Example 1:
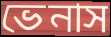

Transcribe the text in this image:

ভেনাস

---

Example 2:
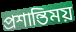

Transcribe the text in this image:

প্রশান্তিময়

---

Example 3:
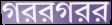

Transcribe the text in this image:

গররগরর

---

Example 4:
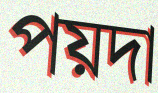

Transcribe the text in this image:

পয়দা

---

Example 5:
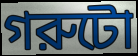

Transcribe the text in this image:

গরুটো